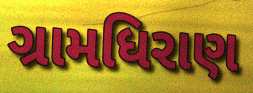
ગ્રામધિરાણ